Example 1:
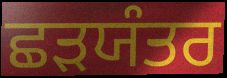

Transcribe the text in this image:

ਛੜਯੰਤਰ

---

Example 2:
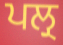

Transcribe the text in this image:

ਪਲ੍ਰ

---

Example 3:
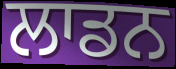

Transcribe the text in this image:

ਲਾਡਨ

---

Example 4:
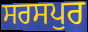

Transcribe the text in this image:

ਸਰਸਪੁਰ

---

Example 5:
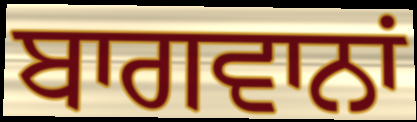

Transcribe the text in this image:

ਬਾਗਵਾਨਾਂ